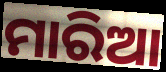
ମାରିଆ